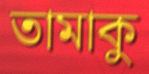
তামাকু